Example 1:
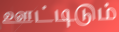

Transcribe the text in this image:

ஊட்டிடும்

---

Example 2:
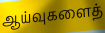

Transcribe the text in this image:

ஆய்வுகளைத்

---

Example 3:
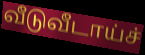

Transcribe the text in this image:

வீடுவீடாய்ச்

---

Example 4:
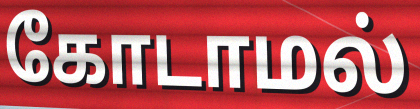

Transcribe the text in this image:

கோடாமல்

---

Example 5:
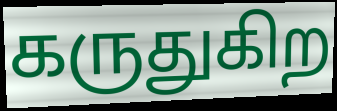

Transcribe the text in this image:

கருதுகிற